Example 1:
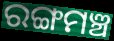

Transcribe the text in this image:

ରଙ୍ଗମଞ୍ଚ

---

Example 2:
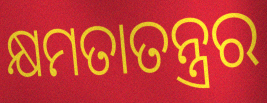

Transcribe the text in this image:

କ୍ଷମତାତନ୍ତ୍ରର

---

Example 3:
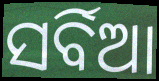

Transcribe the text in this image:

ସର୍ବିଆ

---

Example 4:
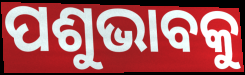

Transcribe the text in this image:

ପଶୁଭାବକୁ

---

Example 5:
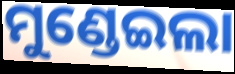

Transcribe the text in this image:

ମୁଣ୍ଡେଇଲା